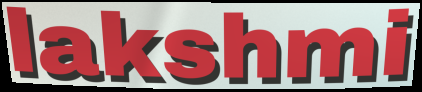
lakshmi